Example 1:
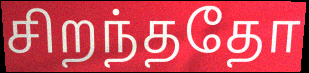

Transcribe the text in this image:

சிறந்ததோ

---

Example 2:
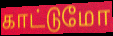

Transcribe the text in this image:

காட்டுமோ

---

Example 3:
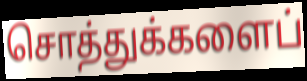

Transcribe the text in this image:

சொத்துக்களைப்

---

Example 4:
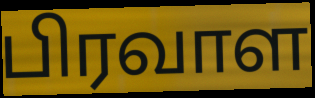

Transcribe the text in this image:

பிரவாள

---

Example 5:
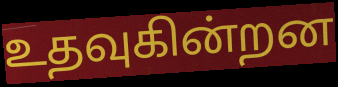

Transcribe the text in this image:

உதவுகின்றன